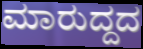
ಮಾರುದ್ದದ